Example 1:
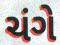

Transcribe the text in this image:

ચંગે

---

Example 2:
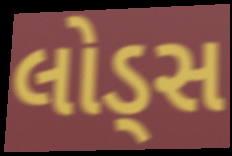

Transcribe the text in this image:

લોડ્સ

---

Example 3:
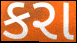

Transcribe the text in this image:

કરા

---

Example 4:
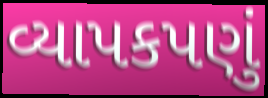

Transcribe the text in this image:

વ્યાપકપણું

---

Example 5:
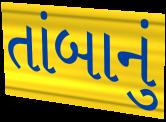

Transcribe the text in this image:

તાંબાનું